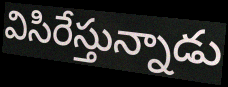
విసిరేస్తున్నాడు